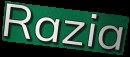
Razia